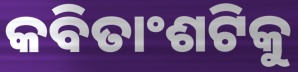
କବିତାଂଶଟିକୁ